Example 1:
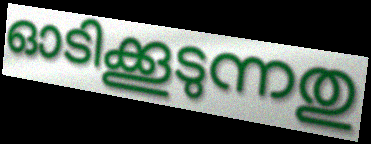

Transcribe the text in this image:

ഓടിക്കൂടുന്നതു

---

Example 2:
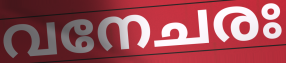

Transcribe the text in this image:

വനേചരഃ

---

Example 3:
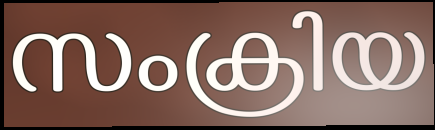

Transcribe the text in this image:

സംക്രിയ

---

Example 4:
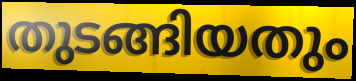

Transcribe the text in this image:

തുടങ്ങിയതും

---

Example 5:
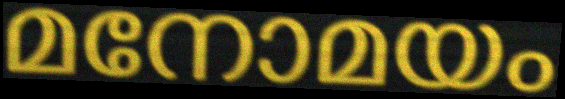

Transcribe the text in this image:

മനോമയം